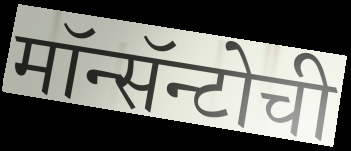
मॉन्सॅन्टोची